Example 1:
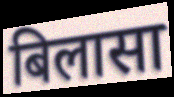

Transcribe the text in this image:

बिलासा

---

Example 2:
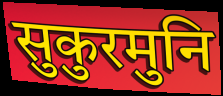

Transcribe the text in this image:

सुकुरमुनि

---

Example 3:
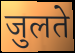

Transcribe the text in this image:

जुलते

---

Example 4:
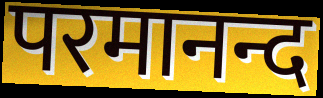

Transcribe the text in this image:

परमानन्‍द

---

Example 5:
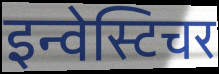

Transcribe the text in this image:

इन्वेस्टिचर